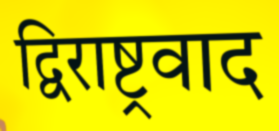
द्विराष्ट्रवाद